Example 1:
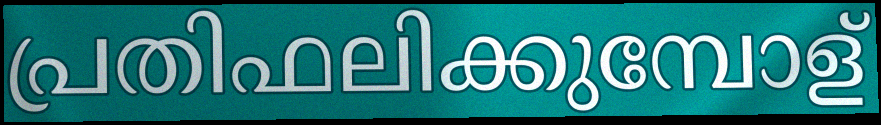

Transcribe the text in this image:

പ്രതിഫലിക്കുമ്പോള്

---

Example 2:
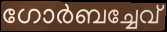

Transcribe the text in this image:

ഗോർബച്ചേവ്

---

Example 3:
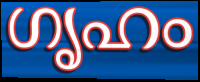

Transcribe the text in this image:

ഗൃഹം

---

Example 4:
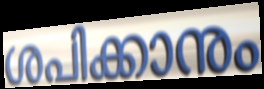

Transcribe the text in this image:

ശപിക്കാനും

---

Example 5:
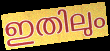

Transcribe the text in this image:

ഇതിലും